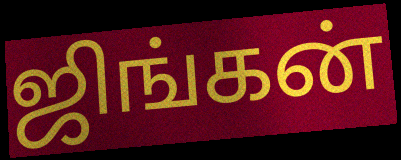
ஜிங்கன்